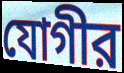
যোগীর